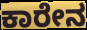
ಕಾರೇನ